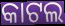
କାଟଲ